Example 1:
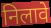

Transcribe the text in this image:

निलावे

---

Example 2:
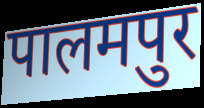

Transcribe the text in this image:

पालमपुर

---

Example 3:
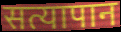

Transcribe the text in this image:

सत्यापान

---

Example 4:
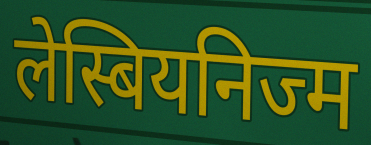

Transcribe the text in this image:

लेस्बियनिज्म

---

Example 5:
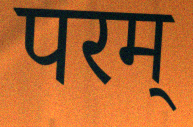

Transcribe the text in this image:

परम्